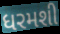
ધરમશી